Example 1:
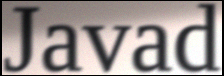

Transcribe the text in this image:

Javad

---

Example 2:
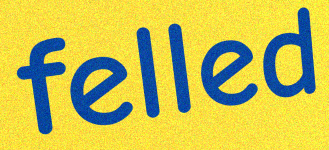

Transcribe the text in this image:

felled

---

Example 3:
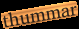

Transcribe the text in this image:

thummar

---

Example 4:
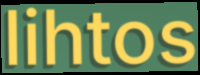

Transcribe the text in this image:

lihtos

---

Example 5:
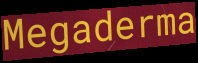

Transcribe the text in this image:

Megaderma